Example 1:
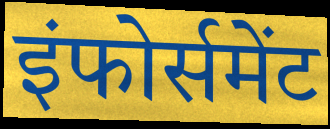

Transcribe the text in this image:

इंफोर्समेंट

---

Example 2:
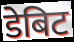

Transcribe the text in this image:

डेबिट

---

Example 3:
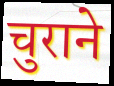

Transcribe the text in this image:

चुराने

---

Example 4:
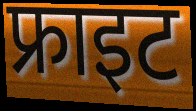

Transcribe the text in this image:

फ्राइट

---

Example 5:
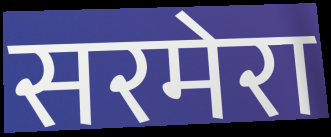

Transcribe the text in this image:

सरमेरा